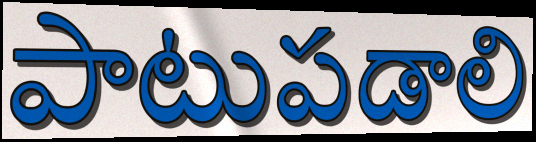
పాటుపడాలి